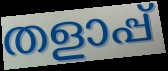
തളാപ്പ്